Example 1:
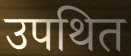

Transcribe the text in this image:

उपथित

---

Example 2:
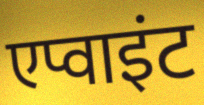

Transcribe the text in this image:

एप्वाइंट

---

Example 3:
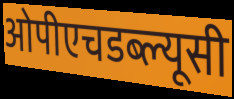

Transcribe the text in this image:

ओपीएचडब्ल्यूसी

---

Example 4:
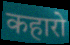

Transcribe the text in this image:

कहारो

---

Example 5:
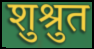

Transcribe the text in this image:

शुश्रुत